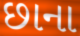
છાના